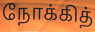
நோக்கித்